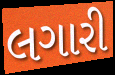
લગારી